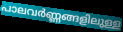
പാലവർണ്ണങ്ങളിലുള്ള